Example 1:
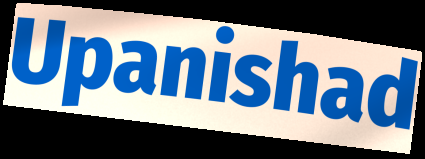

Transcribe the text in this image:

Upanishad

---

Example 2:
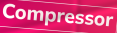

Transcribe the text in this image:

Compressor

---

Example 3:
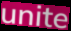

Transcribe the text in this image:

unite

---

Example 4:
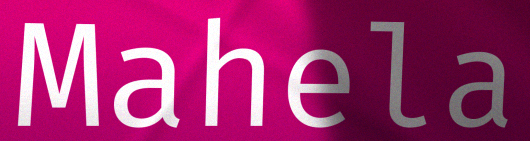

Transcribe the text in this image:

Mahela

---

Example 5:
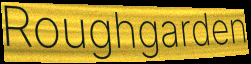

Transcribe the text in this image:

Roughgarden